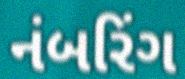
નંબરિંગ